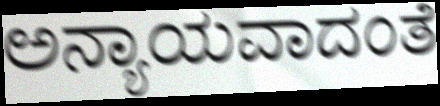
ಅನ್ಯಾಯವಾದಂತೆ